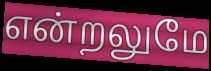
என்றலுமே